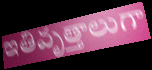
ఇతివృత్తాలుగా